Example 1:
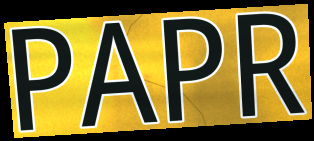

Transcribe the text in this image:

PAPR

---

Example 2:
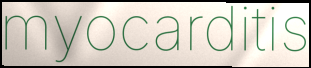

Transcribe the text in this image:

myocarditis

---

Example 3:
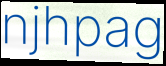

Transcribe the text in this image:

njhpag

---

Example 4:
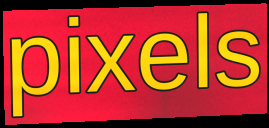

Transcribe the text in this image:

pixels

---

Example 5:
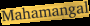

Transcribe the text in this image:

Mahamangal